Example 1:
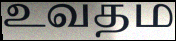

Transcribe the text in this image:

உவதம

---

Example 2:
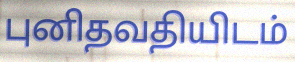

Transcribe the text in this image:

புனிதவதியிடம்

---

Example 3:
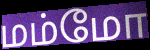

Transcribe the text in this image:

மம்மோ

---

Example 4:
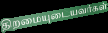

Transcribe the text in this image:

திறமையுடையவர்கள்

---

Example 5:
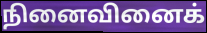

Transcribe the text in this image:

நினைவினைக்